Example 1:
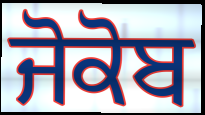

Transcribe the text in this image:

ਜੋਕੋਬ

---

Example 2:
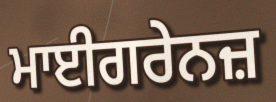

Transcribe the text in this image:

ਮਾਈਗਰੇਨਜ਼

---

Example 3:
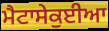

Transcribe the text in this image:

ਮੈਟਾਸੇਕੁਈਆ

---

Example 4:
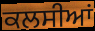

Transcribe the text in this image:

ਕਲਸੀਆਂ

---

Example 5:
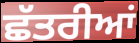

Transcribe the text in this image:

ਛੱਤਰੀਆਂ